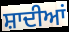
ਸ਼ਾਦੀਆਂ